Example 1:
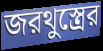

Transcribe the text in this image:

জরথুস্ত্রের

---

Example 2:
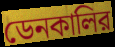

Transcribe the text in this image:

ডেনকালির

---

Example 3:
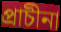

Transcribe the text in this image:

প্রাচীনা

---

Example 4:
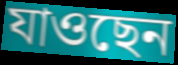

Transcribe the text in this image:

যাওছেন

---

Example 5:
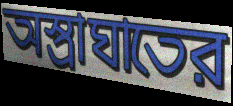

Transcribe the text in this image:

অস্ত্রাঘাতের